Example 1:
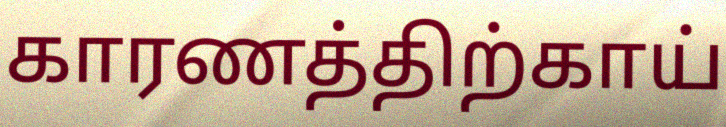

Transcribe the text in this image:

காரணத்திற்காய்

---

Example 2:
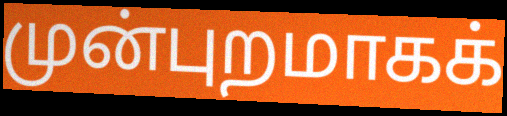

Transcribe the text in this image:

முன்புறமாகக்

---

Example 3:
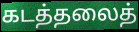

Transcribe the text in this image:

கடத்தலைத்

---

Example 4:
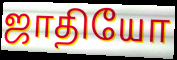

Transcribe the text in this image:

ஜாதியோ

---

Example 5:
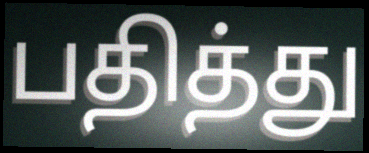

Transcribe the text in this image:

பதித்து